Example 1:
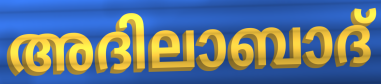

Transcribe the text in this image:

അദിലാബാദ്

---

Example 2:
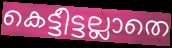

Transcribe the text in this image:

കെട്ടീട്ടല്ലാതെ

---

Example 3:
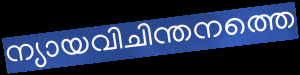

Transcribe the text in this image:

ന്യായവിചിന്തനത്തെ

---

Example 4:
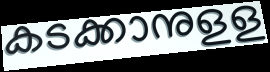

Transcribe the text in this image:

കടക്കാനുളള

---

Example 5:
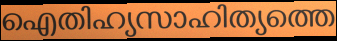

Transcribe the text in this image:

ഐതിഹ്യസാഹിത്യത്തെ